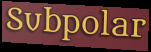
Subpolar